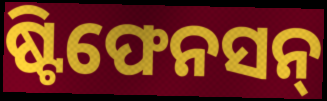
ଷ୍ଟିଫେନସନ୍